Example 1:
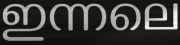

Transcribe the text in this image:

ഇന്നലെ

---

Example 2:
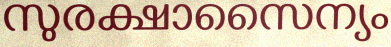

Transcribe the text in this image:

സുരക്ഷാസൈന്യം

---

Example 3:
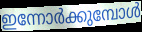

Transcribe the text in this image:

ഇന്നോർക്കുമ്പോൾ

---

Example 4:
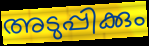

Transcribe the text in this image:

അടുപ്പിക്കും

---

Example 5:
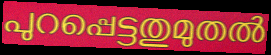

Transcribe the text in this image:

പുറപ്പെട്ടതുമുതൽ